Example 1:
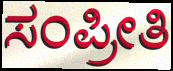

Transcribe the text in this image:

ಸಂಪ್ರೀತಿ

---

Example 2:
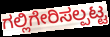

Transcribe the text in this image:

ಗಲ್ಲಿಗೇರಿಸಲ್ಪಟ್ಟ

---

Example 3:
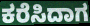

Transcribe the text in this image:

ಕರೆಸಿದಾಗ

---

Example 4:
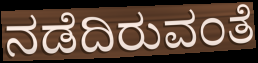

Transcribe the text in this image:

ನಡೆದಿರುವಂತೆ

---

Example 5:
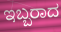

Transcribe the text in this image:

ಇಬ್ಬರಾದ